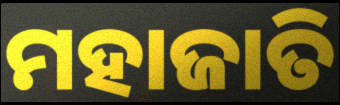
ମହାଜାତି